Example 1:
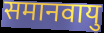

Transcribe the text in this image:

समानवायु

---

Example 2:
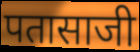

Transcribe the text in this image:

पतासाजी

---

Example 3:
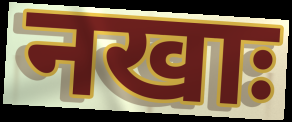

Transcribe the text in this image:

नखाः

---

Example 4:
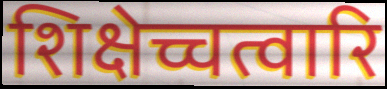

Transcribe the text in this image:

शिक्षेच्चत्वारि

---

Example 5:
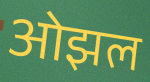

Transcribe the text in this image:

ओझल